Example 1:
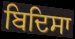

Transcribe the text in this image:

ਬਿਦਿਸਾ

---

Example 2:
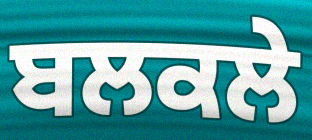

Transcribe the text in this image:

ਬਲਕਲੇ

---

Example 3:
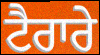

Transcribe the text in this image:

ਟੈਰਾਰੇ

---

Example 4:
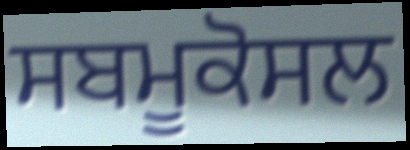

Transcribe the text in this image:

ਸਬਮੂਕੋਸਲ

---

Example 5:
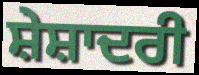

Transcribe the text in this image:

ਸ਼ੇਸ਼ਾਦਰੀ